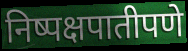
निष्पक्षपातीपणे